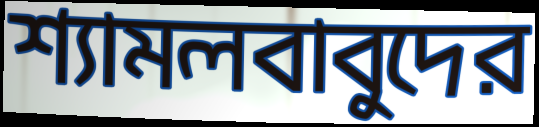
শ্যামলবাবুদের